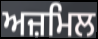
ਅਜ਼ਮਿਲ